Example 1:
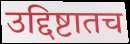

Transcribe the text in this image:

उद्दिष्टातच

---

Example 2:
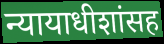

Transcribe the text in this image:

न्यायाधीशांसह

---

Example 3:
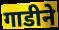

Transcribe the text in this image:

गाडीने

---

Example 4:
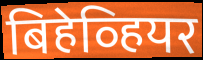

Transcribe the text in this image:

बिहेव्हियर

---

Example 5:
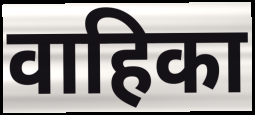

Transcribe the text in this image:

वाहिका